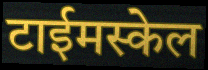
टाईमस्केल